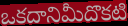
ఒకదానిమీదొకటి